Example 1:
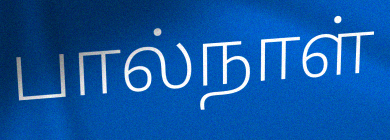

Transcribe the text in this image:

பால்நாள்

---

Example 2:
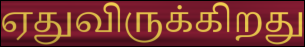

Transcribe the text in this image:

ஏதுவிருக்கிறது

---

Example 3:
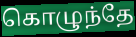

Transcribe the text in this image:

கொழுந்தே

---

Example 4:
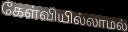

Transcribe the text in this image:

கேள்வியில்லாமல்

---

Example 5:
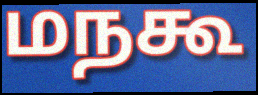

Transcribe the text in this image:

மநகூ